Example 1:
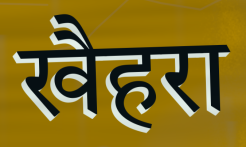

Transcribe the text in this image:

खैहरा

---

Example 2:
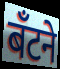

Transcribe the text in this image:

बँटने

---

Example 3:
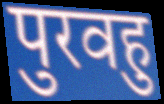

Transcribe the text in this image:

पुरवहु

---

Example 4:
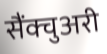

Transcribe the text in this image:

सैंक्चुअरी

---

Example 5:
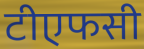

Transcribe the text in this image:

टीएफसी